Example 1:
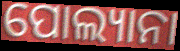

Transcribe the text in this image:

ପୋଲ୍ୟାନା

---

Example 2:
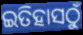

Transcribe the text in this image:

ଇତିହାସଠୁଁ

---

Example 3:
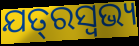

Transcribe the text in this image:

ଯତ୍‌ରସ୍ଵଭ୍ୟ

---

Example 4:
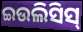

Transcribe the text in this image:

ଇଉଲିସିସ୍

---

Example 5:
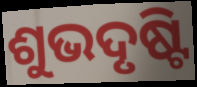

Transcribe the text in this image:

ଶୁଭଦୃଷ୍ଟି